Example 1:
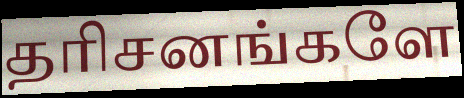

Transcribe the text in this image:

தரிசனங்களே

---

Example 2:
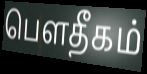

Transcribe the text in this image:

பௌதீகம்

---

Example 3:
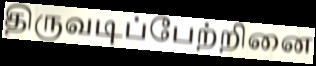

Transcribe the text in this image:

திருவடிப்பேற்றினை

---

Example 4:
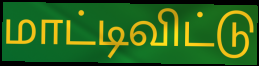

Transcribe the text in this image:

மாட்டிவிட்டு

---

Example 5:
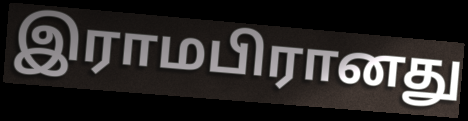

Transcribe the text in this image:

இராமபிரானது